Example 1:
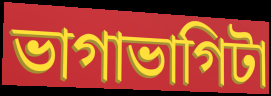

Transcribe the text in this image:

ভাগাভাগিটা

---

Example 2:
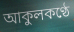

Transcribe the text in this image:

আকুলকণ্ঠে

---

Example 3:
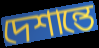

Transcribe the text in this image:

দেশান্তে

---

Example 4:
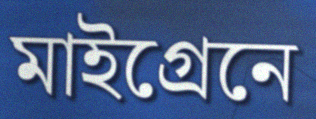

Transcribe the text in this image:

মাইগ্রেনে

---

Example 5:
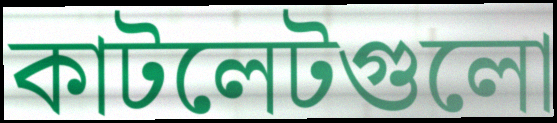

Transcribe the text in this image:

কাটলেটগুলো